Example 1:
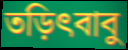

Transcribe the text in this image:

তড়িৎবাবু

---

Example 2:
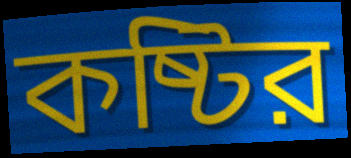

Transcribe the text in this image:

কষ্টির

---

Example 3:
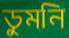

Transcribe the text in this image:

ডুমনি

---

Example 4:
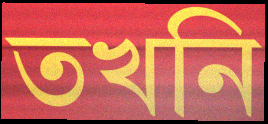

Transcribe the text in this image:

তখনি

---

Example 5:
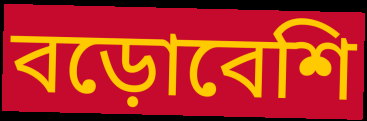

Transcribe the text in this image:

বড়োবেশি